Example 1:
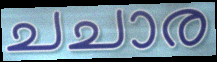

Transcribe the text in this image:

ചചാര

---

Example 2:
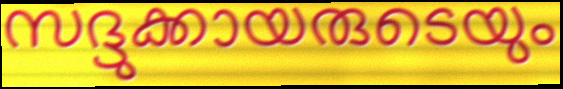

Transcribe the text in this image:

സദ്ദുക്കായരുടെയും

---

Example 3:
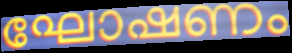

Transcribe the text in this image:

ഘോഷണം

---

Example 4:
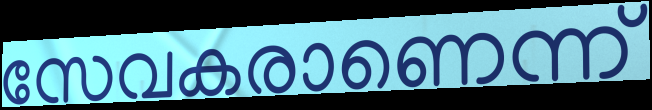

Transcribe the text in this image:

സേവകരാണെന്ന്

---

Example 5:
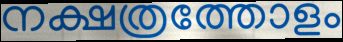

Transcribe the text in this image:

നക്ഷത്രത്തോളം